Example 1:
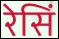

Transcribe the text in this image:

रेसिं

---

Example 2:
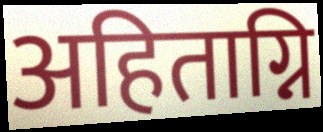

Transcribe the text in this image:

अहिताग्नि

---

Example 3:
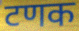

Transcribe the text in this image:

टणक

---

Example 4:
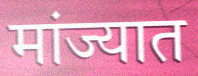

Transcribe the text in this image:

मांज्यात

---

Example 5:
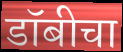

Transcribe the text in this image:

डॉबीचा